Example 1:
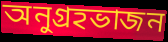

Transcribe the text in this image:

অনুগ্রহভাজন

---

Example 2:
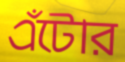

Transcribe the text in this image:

এঁটোর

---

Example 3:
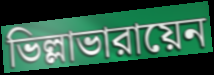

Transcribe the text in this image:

ভিল্লাভারায়েন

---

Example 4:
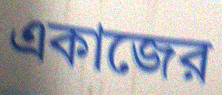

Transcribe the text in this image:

একাজের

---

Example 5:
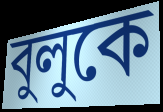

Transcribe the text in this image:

বুলুকে